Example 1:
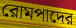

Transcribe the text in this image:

রোমপাদের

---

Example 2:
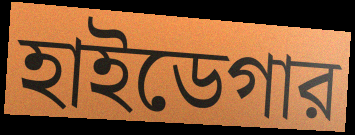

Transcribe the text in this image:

হাইডেগার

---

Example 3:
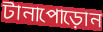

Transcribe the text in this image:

টানাপোড়োন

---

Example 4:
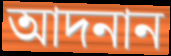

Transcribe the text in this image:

আদনান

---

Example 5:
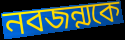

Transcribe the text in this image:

নবজন্মকে